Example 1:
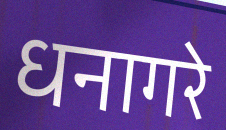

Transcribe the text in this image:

धनागरे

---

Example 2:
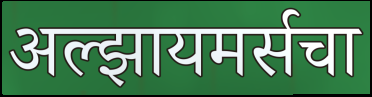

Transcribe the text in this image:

अल्झायमर्सचा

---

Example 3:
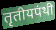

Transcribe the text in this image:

तृतीयपंथी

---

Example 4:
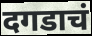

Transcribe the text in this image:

दगडाचं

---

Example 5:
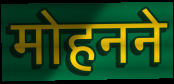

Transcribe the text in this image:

मोहनने